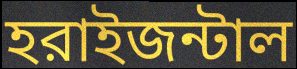
হরাইজন্টাল